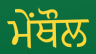
ਮੇਂਥੌਲ